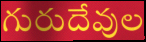
గురుదేవుల